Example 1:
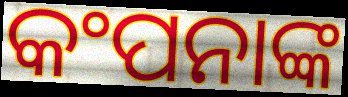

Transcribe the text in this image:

କଂପନାଙ୍କ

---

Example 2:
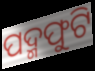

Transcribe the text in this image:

ପଦ୍ମଫୁଟି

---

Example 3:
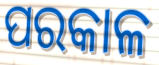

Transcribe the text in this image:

ପରକାଳ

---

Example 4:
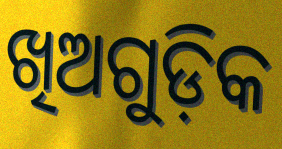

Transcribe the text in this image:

ଖିଅଗୁଡ଼ିକ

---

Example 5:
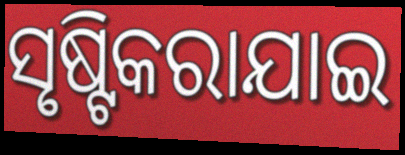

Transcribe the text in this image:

ସୃଷ୍ଟିକରାଯାଇ